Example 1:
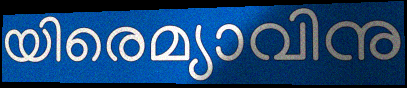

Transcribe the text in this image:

യിരെമ്യാവിനു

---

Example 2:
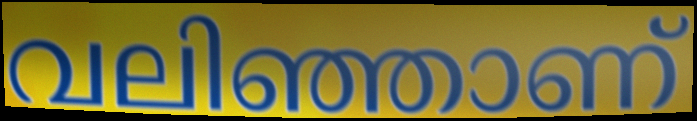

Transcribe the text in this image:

വലിഞ്ഞാണ്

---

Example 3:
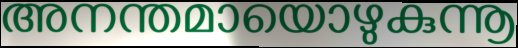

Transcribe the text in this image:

അനന്തമായൊഴുകുന്നൂ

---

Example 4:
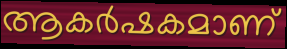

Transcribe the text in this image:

ആകർഷകമാണ്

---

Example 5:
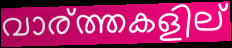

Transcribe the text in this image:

വാര്ത്തകളില്